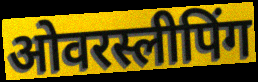
ओवरस्लीपिंग